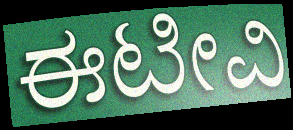
ಈಟೀವಿ